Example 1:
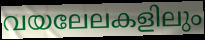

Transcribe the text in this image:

വയലേലകളിലും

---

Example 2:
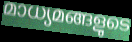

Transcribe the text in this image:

മാധ്യമങ്ങളുടെ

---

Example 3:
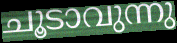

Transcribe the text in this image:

ചൂടാവുന്നു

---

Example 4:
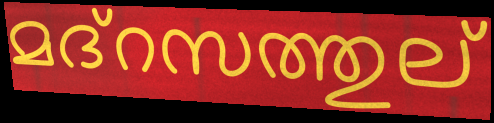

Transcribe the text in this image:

മദ്റസത്തുല്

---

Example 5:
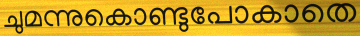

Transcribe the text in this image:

ചുമന്നുകൊണ്ടുപോകാതെ